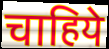
चाहिये